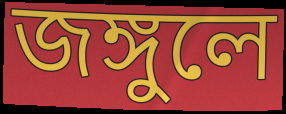
জঙ্গুলে